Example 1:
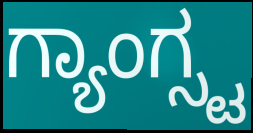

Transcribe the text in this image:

ಗ್ಯಾಂಗ್ಸ್ಟ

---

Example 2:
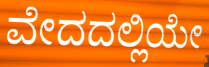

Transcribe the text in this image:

ವೇದದಲ್ಲಿಯೇ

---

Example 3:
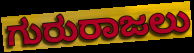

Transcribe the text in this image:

ಗುರುರಾಜಲು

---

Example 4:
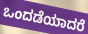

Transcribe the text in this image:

ಒಂದಡೆಯಾದರೆ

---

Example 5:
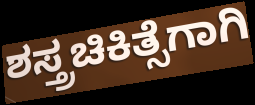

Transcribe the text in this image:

ಶಸ್ತ್ರಚಿಕಿತ್ಸೆಗಾಗಿ